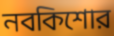
নবকিশোর